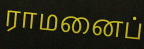
ராமனைப்